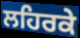
ਲਹਿਰਕੇ